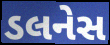
ડલનેસ